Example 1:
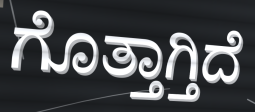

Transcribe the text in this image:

ಗೊತ್ತಾಗ್ತಿದೆ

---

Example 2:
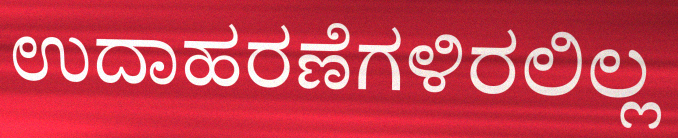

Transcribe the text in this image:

ಉದಾಹರಣೆಗಳಿರಲಿಲ್ಲ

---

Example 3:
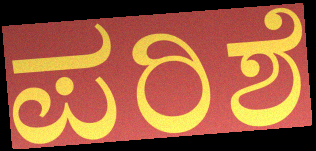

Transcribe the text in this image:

ಪರಿಶೆ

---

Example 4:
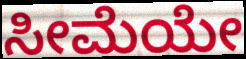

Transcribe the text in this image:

ಸೀಮೆಯೇ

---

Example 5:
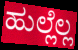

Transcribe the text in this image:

ಹುಲ್ಲೆಲ್ಲ